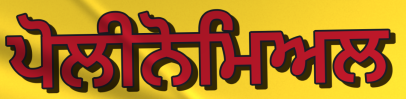
ਪੋਲੀਨੋਮਿਅਲ